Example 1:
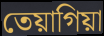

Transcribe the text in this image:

তেয়াগিয়া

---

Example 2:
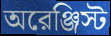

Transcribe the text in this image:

অরেঞ্জিস্ট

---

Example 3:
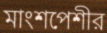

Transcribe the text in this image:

মাংশপেশীর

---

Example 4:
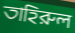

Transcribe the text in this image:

তাহিরুল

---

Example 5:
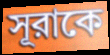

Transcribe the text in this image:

সূরাকে